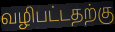
வழிபட்டதற்கு